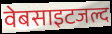
वेबसाइटजल्द